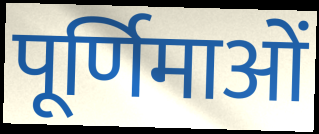
पूर्णिमाओं